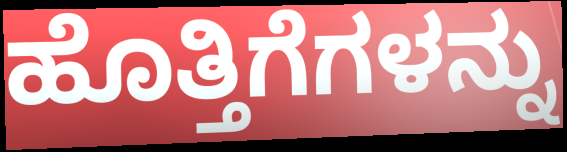
ಹೊತ್ತಿಗೆಗಳನ್ನು